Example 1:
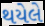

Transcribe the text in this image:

થયેલે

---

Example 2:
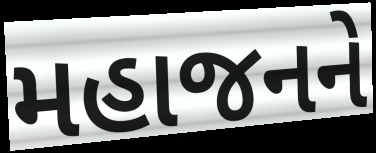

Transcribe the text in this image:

મહાજનને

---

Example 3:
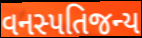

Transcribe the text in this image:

વનસ્પતિજન્ય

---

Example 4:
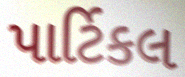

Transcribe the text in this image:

પાર્ટિકલ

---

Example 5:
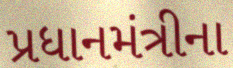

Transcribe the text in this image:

પ્રધાનમંત્રીના